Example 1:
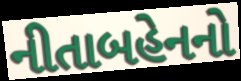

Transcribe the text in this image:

નીતાબહેનનો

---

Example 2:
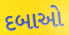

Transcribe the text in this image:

દબાઓ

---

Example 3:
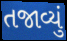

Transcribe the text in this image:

તજાવ્યું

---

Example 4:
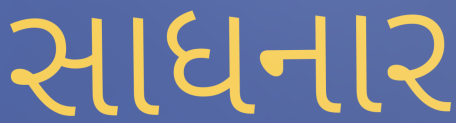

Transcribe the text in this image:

સાધનાર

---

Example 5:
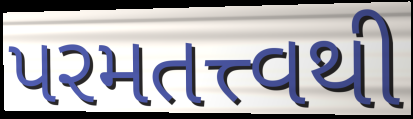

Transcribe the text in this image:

પરમતત્ત્વથી